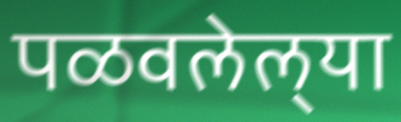
पळवलेल्या